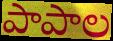
పాపాల